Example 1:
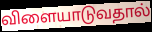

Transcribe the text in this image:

விளையாடுவதால்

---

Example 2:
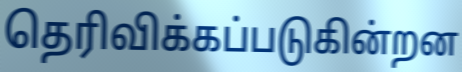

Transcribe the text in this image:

தெரிவிக்கப்படுகின்றன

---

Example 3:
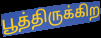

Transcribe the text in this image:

பூத்திருக்கிற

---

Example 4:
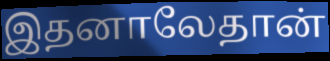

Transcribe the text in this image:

இதனாலேதான்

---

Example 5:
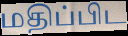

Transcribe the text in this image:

மதிப்பிட